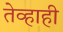
तेव्हाही